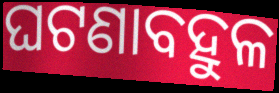
ଘଟଣାବହୁଳ